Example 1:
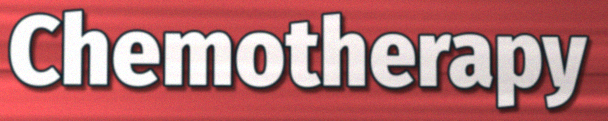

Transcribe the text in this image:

Chemotherapy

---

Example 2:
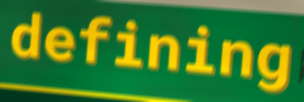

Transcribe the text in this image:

defining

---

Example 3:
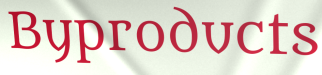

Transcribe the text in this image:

Byproducts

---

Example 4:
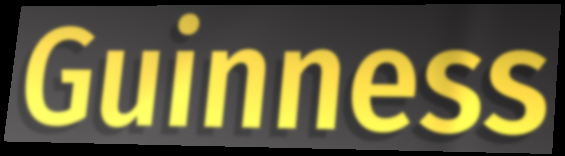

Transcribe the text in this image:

Guinness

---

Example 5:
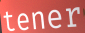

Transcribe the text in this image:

tener